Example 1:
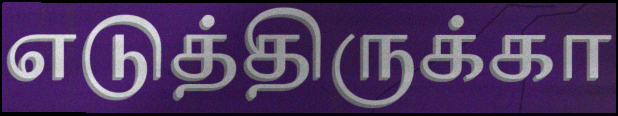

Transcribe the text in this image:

எடுத்திருக்கா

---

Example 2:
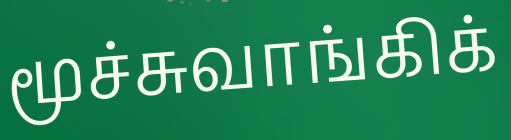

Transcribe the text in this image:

மூச்சுவாங்கிக்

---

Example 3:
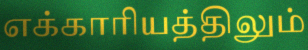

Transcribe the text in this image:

எக்காரியத்திலும்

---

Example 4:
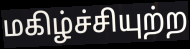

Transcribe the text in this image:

மகிழ்ச்சியுற்ற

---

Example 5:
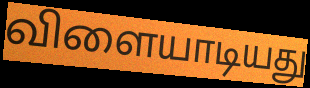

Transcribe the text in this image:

விளையாடியது